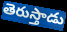
తెరుస్తాడు